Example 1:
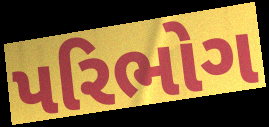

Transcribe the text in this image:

પરિભોગ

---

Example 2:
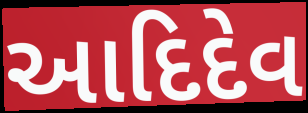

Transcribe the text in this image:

આદિદેવ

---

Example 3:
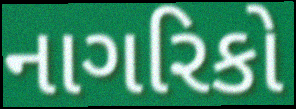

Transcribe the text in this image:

નાગરિકો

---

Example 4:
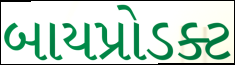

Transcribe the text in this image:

બાયપ્રોડક્ટ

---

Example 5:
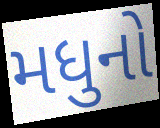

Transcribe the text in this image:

મધુનો